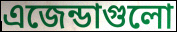
এজেন্ডাগুলো